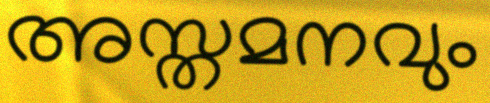
അസ്തമനവും